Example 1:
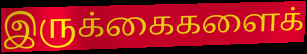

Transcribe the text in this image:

இருக்கைகளைக்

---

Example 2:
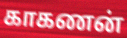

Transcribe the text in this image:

காகணன்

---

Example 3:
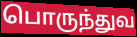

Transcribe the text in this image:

பொருந்துவ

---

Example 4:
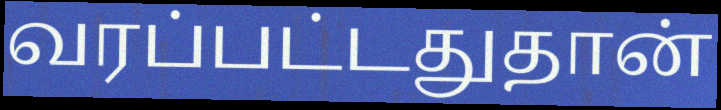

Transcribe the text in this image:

வரப்பட்டதுதான்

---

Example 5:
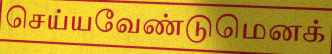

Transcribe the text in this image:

செய்யவேண்டுமெனக்